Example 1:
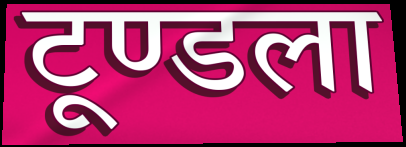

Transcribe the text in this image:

टूण्डला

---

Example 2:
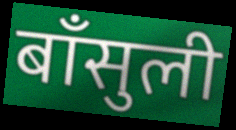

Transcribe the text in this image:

बाँसुली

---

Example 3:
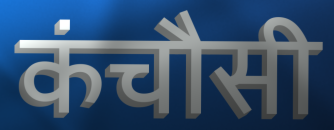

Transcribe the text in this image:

कंचौसी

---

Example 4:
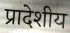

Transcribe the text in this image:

प्रादेशीय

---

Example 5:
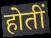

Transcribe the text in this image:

होतीं